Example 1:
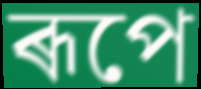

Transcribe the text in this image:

ৰূপে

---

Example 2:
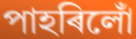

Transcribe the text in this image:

পাহৰিলোঁ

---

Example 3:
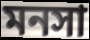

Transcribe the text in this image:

মনসা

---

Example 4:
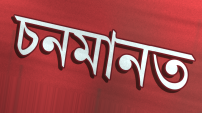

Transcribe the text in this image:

চনমানত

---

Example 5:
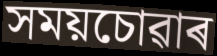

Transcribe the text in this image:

সময়চোৱাৰ